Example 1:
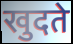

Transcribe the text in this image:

खुदते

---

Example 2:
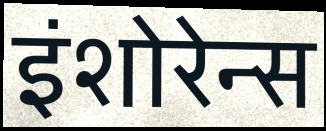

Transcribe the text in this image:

इंशोरेन्स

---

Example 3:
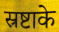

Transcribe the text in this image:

स्रष्टाके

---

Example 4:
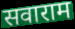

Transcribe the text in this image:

सवाराम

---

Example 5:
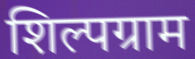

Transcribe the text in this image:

शिल्पग्राम